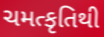
ચમત્કૃતિથી